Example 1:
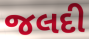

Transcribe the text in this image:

જલદી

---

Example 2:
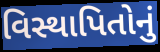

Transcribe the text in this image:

વિસ્થાપિતોનું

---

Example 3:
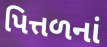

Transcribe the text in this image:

પિત્તળનાં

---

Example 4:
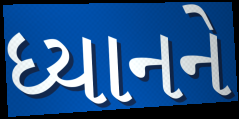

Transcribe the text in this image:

ધ્યાનને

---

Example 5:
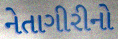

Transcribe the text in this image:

નેતાગીરીનો